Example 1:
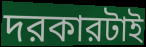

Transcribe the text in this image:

দরকারটাই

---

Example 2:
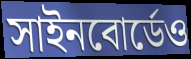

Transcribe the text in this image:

সাইনবোর্ডেও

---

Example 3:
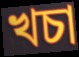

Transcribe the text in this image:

খচা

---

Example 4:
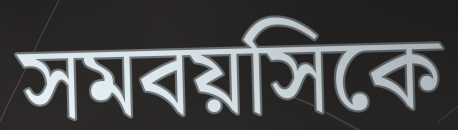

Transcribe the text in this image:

সমবয়সিকে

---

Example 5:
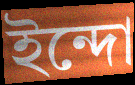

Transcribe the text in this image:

ইন্দো